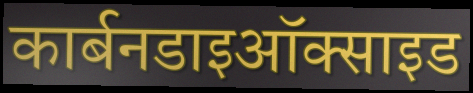
कार्बनडाइऑक्साइड